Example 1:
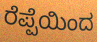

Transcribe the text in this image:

ರೆಪ್ಪೆಯಿಂದ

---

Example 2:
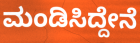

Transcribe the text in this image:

ಮಂಡಿಸಿದ್ದೇನೆ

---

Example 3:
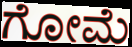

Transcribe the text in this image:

ಗೋಮೆ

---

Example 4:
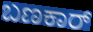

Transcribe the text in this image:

ಬಣಕಾರ್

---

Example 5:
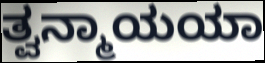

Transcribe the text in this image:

ತ್ವನ್ಮಾಯಯಾ